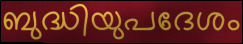
ബുദ്ധിയുപദേശം